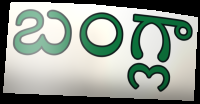
బంగ్లా